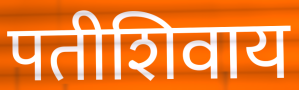
पतीशिवाय